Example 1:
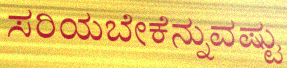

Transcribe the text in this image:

ಸರಿಯಬೇಕೆನ್ನುವಷ್ಟು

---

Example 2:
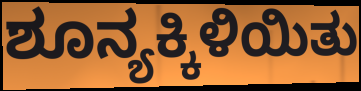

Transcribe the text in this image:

ಶೂನ್ಯಕ್ಕಿಳಿಯಿತು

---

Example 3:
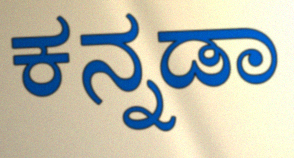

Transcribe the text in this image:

ಕನ್ನಡಾ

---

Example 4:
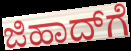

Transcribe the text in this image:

ಜಿಹಾದ್‌ಗೆ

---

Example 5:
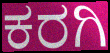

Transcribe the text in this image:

ಕರಗಿ